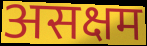
असक्षम